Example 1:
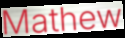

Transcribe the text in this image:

Mathew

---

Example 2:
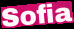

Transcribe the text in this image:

Sofia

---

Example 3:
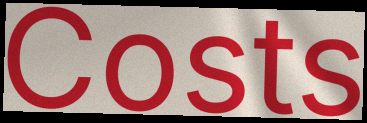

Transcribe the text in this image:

Costs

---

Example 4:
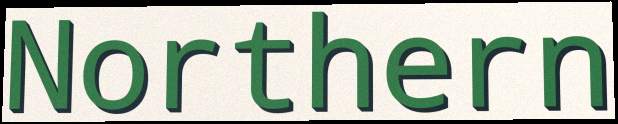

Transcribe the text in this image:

Northern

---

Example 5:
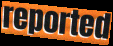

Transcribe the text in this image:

reported